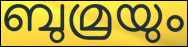
ബുമ്രയും